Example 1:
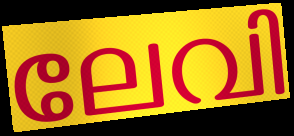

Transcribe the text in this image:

ലേവി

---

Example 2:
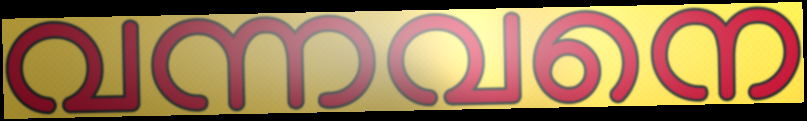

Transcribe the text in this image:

വന്നവനെ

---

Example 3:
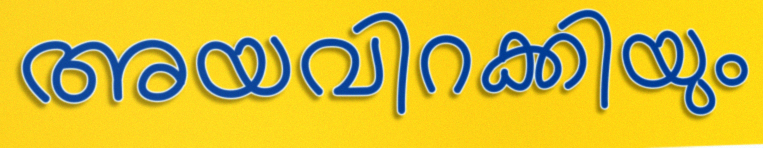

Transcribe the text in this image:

അയവിറക്കിയും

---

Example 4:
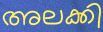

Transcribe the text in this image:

അലക്കി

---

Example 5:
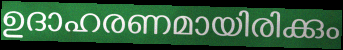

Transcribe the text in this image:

ഉദാഹരണമായിരിക്കും